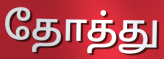
தோத்து